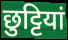
छुट्टियां